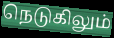
நெடுகிலும்